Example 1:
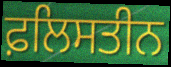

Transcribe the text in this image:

ਫ਼ਲਿਸਤੀਨ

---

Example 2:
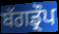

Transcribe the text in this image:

ਬੱਗਡ੍ਰੌਪ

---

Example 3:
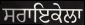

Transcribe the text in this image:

ਸਰਾਇਕੇਲਾ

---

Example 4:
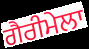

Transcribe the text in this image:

ਗੈਰੀਮੇਲਾ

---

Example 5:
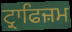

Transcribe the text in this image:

ਟ੍ਰਾਫਿਜ਼ਮ